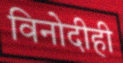
विनोदीही